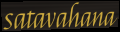
satavahana